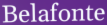
Belafonte